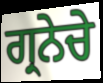
ਗ੍ਰਨੇਚੇ